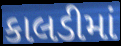
કાલડીમાં